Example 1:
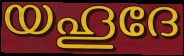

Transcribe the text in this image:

യഹൂദേ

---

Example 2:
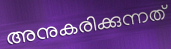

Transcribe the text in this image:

അനുകരിക്കുന്നത്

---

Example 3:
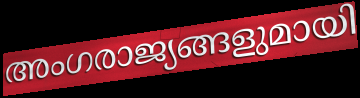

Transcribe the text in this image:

അംഗരാജ്യങ്ങളുമായി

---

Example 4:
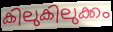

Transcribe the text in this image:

കിലുകിലുക്കം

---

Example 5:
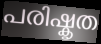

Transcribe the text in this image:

പരിഷ്കൃത